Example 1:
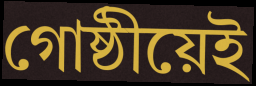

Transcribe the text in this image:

গোষ্ঠীয়েই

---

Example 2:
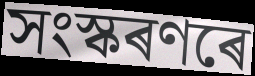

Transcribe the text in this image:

সংস্কৰণৰে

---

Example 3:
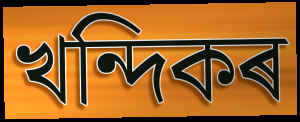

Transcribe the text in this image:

খন্দিকৰ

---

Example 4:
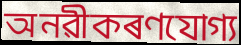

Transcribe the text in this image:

অনৱীকৰণযোগ্য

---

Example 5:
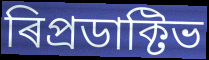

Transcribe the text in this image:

ৰিপ্ৰডাক্টিভ